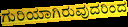
ಗುರಿಯಾಗಿರುವುದರಿಂದ